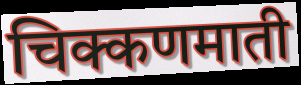
चिक्कणमाती